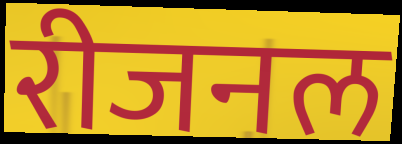
रीजनल